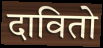
दावितो